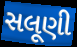
સલૂણી